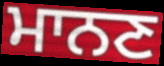
ਮਾਨਣ